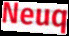
Neuq